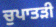
ਚੁਪਾਤੜੀ